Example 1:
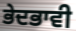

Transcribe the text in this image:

ਭੇਦਭਾਵੀ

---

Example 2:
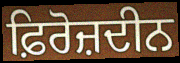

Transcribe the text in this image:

ਫ਼ਿਰੋਜ਼ਦੀਨ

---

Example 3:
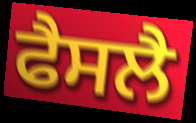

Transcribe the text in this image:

ਫੈਸਲੈ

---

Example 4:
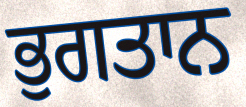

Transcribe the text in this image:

ਭੁਗਤਾਨ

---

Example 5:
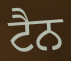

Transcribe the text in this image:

ਟੈਨ